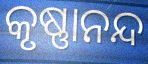
କୃଷ୍ଣାନନ୍ଦ